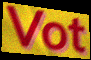
Vot